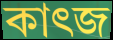
কাৎজ